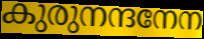
കുരുനന്ദനേന